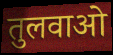
तुलवाओ